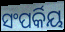
ସଂପର୍କିୟ